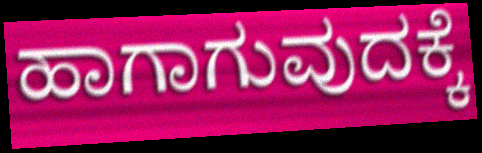
ಹಾಗಾಗುವುದಕ್ಕೆ